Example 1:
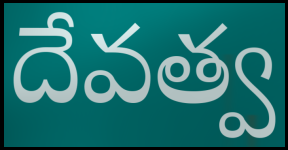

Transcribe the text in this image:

దేవత్వ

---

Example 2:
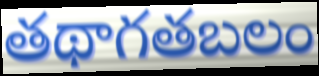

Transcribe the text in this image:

తథాగతబలం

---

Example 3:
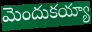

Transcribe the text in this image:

మెందుకయ్యా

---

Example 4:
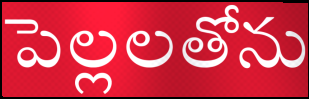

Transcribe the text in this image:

పెల్లలతోను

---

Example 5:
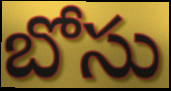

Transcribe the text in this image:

బోసు